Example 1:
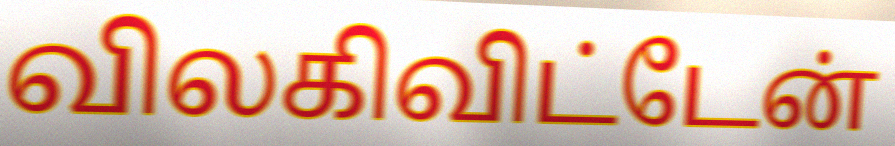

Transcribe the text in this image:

விலகிவிட்டேன்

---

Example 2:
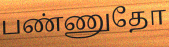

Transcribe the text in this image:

பண்ணுதோ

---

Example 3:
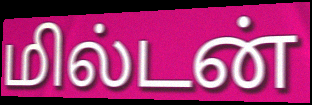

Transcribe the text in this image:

மில்டன்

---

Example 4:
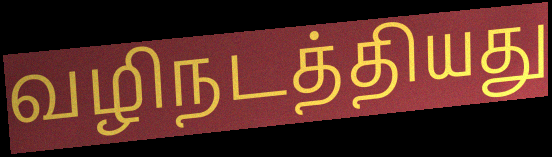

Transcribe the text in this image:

வழிநடத்தியது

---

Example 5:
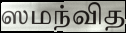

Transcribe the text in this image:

ஸமந்வித